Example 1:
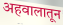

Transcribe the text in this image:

अहवालातून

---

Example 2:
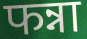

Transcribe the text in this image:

फन्ना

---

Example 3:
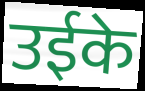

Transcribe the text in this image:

उईके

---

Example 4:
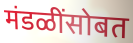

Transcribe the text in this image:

मंडळींसोबत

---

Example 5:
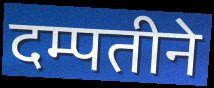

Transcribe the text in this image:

दम्पतीने